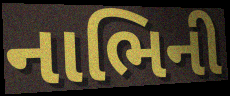
નાભિની